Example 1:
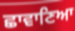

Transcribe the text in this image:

ਛਾਵਾਣਿਆ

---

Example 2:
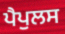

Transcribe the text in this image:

ਪੈਪੁਲਸ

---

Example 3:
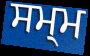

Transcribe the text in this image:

ਸਮ੍ਮ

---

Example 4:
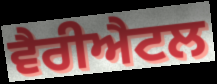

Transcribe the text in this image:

ਵੈਰੀਐਟਲ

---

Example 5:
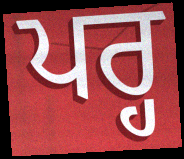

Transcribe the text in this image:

ਪਰ੍ਹ